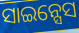
ସାଇନ୍ସେସ